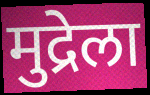
मुद्रेला